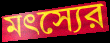
মৎস্যের